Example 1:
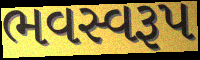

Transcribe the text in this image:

ભવસ્વરૂપ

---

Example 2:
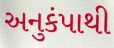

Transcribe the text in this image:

અનુકંપાથી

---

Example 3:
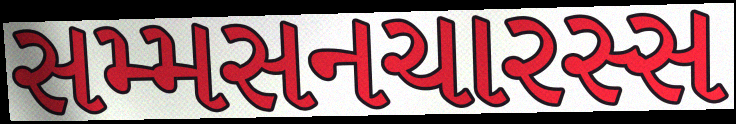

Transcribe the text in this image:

સમ્મસનચારસ્સ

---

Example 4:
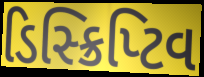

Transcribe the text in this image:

ડિસ્ક્રિપ્ટિવ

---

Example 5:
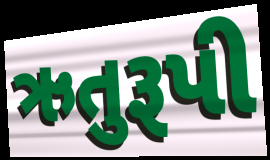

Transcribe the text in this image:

ઋતુરૂપી